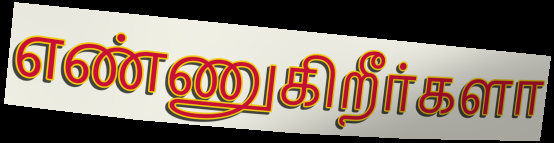
எண்ணுகிறீர்களா